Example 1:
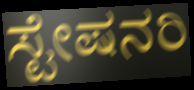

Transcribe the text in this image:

ಸ್ಟೇಷನರಿ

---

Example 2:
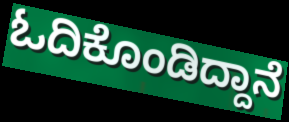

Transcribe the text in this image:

ಓದಿಕೊಂಡಿದ್ದಾನೆ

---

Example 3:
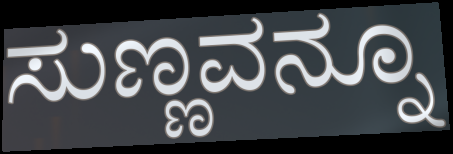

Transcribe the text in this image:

ಸುಣ್ಣವನ್ನೂ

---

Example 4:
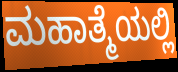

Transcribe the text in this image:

ಮಹಾತ್ಮೆಯಲ್ಲಿ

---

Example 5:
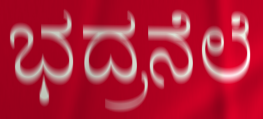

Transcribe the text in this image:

ಭದ್ರನೆಲೆ